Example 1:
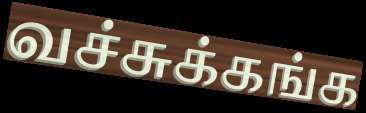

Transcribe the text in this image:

வச்சுக்கங்க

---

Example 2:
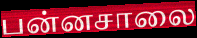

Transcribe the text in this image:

பன்னசாலை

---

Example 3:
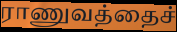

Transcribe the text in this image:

ராணுவத்தைச்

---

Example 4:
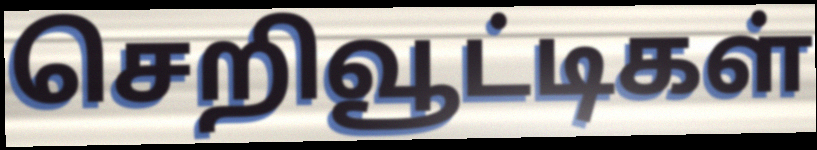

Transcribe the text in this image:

செறிவூட்டிகள்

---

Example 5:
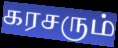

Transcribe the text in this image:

கரசரும்